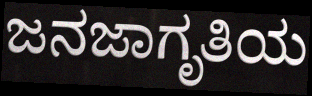
ಜನಜಾಗೃತಿಯ